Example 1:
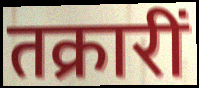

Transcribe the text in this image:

तक्रारीं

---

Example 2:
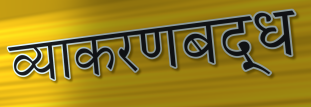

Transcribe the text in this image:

व्याकरणबद्ध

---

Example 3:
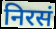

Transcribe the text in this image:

निरसं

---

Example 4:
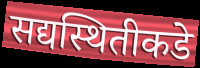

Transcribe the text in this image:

सद्यस्थितीकडे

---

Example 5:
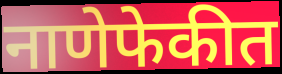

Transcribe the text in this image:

नाणेफेकीत